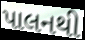
પાલનથી